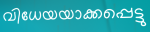
വിധേയയാക്കപ്പെട്ടു